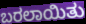
ಬರಲಾಯಿತು